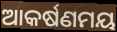
ଆକର୍ଷଣମୟ